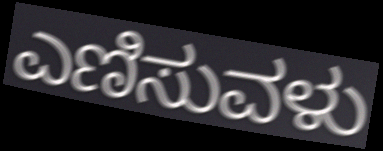
ಎಣಿಸುವಳು